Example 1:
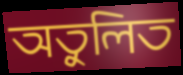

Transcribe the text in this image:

অতুলিত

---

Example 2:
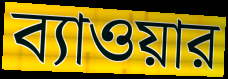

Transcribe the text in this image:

ব্যাওয়ার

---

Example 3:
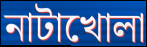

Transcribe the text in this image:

নাটাখোলা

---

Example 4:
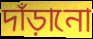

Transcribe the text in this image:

দাঁড়ানো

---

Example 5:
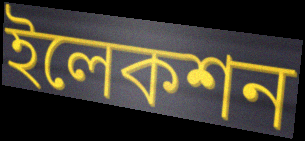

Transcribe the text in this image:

ইলেকশন